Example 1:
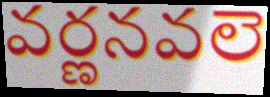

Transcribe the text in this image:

వర్ణనవలె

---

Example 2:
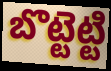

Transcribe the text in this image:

బొట్టెట్టి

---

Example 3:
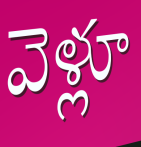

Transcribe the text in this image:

వెళ్లూ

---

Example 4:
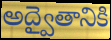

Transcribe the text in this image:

అద్వైతానికి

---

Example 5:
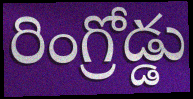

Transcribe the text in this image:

రింగ్రోడ్డు